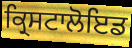
ਕ੍ਰਿਸਟਾਲੋਇਡ